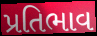
પ્રતિભાવ